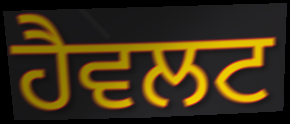
ਹੈਵਲਟ